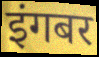
इंगबर